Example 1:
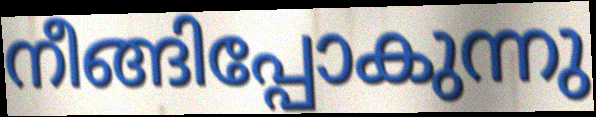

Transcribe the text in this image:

നീങ്ങിപ്പോകുന്നു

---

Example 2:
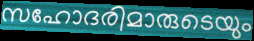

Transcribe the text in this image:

സഹോദരിമാരുടെയും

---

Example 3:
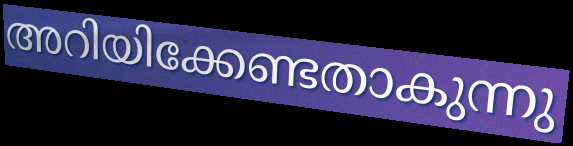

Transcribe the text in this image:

അറിയിക്കേണ്ടതാകുന്നു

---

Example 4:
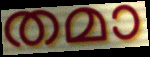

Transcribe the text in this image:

തമാ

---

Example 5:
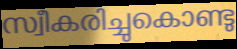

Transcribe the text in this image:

സ്വീകരിച്ചുകൊണ്ടു